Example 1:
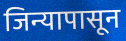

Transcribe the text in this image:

जिन्यापासून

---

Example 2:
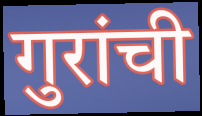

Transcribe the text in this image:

गुरांची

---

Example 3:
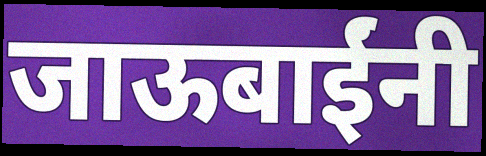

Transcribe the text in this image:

जाऊबाईंनी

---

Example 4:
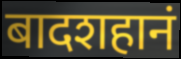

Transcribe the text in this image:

बादशहानं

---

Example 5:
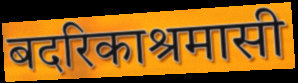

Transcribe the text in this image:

बदरिकाश्रमासी